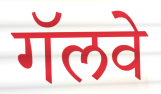
गॅलवे